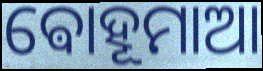
ଵୋହୂମାଆ